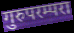
गुरुपरम्परा